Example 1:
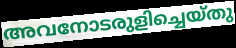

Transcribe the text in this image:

അവനോടരുളിച്ചെയ്തു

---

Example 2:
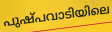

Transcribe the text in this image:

പുഷ്പവാടിയിലെ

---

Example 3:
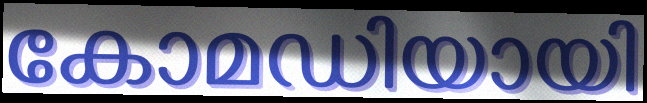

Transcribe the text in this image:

കോമഡിയായി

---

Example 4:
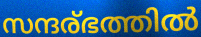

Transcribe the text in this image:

സന്ദര്ഭത്തിൽ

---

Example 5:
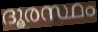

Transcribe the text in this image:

ദൂരസ്ഥം